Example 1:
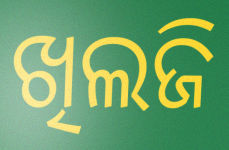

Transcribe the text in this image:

ଖିଲଜି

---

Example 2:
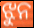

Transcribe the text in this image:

ଝୁନ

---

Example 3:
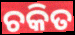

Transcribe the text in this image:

ଚକିତ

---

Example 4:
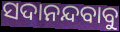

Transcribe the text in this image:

ସଦାନନ୍ଦବାବୁ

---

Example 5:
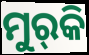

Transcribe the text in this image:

ମୁର୍‌କି